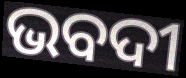
ଭବଦୀ